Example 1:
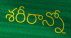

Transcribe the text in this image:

శరీరాన్నో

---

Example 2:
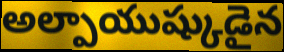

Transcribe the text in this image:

అల్పాయుష్కుడైన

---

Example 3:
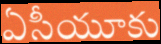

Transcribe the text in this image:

ఏసీయూకు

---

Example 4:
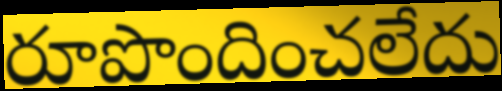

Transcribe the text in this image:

రూపొందించలేదు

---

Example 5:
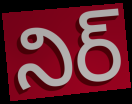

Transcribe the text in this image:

నిర్